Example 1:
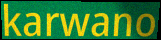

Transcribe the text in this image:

karwano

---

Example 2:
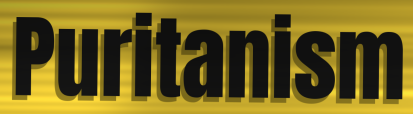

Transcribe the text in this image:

Puritanism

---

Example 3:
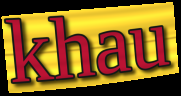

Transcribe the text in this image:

khau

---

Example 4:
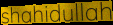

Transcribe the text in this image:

shahidullah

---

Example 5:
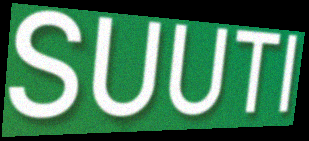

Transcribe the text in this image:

SUUTI